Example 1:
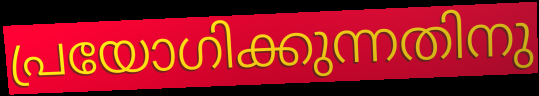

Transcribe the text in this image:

പ്രയോഗിക്കുന്നതിനു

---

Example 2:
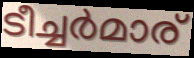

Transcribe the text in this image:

ടീച്ചർമാര്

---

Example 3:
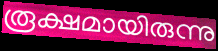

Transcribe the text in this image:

രൂക്ഷമായിരുന്നു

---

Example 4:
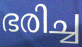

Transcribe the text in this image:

ഭരിച്ച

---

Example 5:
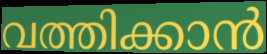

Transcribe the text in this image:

വത്തിക്കാൻ